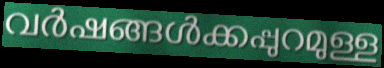
വർഷങ്ങൾക്കപ്പുറമുള്ള